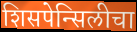
शिसपेन्सिलीचा